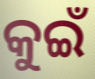
କୁଇଁ